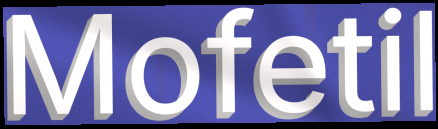
Mofetil